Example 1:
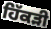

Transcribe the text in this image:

ਹਿੱਕੜੀ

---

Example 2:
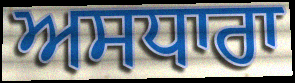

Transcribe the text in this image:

ਅਸਧਾਰਾ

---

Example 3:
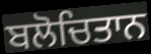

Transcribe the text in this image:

ਬਲੋਚਿਤਾਨ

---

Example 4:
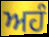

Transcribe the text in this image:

ਅਹੰ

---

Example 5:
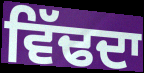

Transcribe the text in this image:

ਵਿੱਢਦਾ